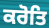
ਕਰੋਤਿ